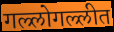
गल्लोगल्लीत